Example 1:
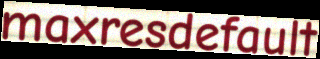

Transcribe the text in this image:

maxresdefault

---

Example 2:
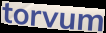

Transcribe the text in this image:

torvum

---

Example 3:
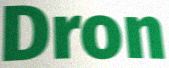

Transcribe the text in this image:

Dron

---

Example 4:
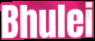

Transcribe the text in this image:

Bhulei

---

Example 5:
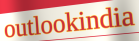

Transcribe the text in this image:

outlookindia